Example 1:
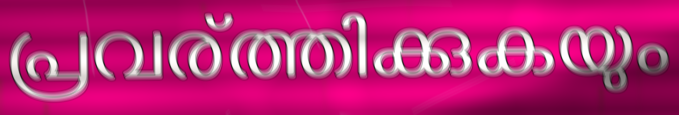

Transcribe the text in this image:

പ്രവര്ത്തിക്കുകയും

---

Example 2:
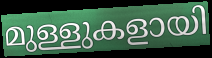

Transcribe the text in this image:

മുള്ളുകളായി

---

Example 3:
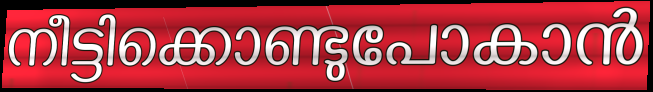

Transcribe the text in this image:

നീട്ടിക്കൊണ്ടുപോകാൻ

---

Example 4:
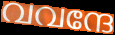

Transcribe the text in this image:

വവന്ദേ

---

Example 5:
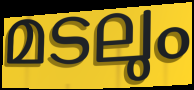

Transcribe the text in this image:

മടലും